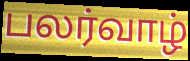
பலர்வாழ்